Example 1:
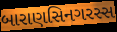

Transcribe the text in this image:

બારાણસિનગરસ્સ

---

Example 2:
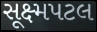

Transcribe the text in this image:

સૂક્ષ્મપટલ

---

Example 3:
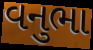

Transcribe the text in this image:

વનુભા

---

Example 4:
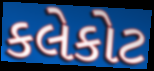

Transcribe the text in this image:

કલેકોટ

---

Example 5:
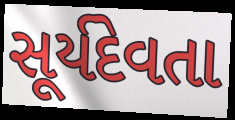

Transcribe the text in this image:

સૂર્યદેવતા